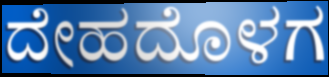
ದೇಹದೊಳಗ